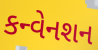
કન્વેનશન